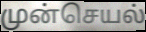
முன்செயல்